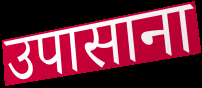
उपासाना